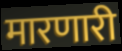
मारणारी